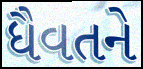
ધૈવતને